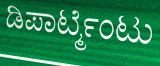
ಡಿಪಾರ್ಟ್ಮೆಂಟು